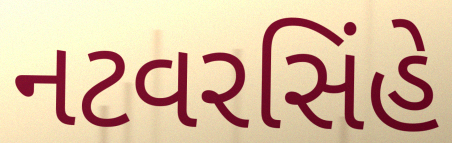
નટવરસિંહે